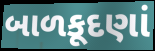
બાળકૂદણાં